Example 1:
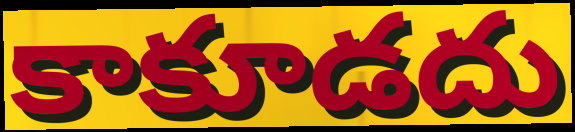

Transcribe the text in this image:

కాకూడదు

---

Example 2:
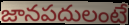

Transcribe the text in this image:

జానపదులంటే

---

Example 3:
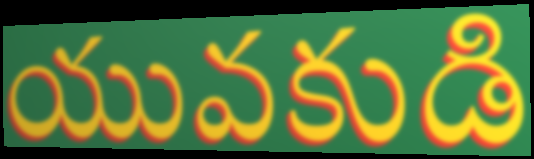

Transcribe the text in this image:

యువకుడి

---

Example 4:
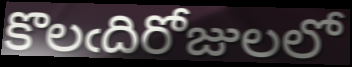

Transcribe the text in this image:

కొలఁదిరోజులలో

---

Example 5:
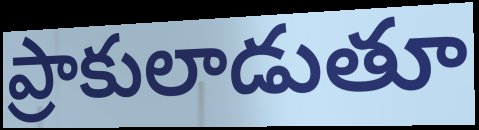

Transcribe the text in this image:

ప్రాకులాడుతూ